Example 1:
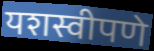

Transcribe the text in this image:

यशस्वीपणे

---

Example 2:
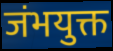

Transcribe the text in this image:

जंभयुक्त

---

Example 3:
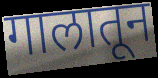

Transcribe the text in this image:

गालातून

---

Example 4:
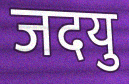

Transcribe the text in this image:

जदयु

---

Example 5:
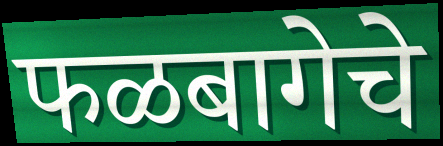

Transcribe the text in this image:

फळबागेचे